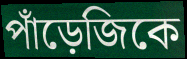
পাঁড়েজিকে